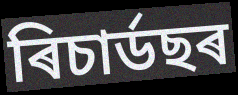
ৰিচাৰ্ডছৰ